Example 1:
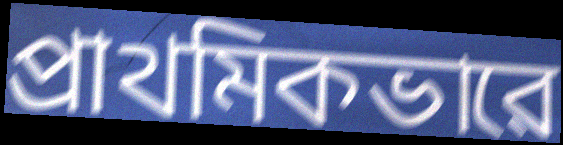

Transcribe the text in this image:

প্ৰাথমিকভাৱে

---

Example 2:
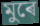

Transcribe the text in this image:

মুৰে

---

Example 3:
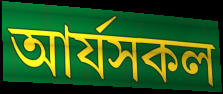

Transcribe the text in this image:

আৰ্যসকল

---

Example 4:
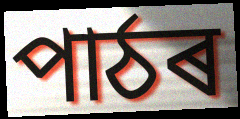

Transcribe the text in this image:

পাঠৰ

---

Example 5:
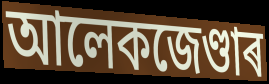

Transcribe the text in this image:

আলেকজেণ্ডাৰ